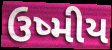
ઉષ્મીય